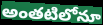
అంతటిలోనూ